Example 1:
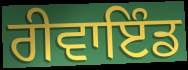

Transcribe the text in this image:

ਰੀਵਾਇੰਡ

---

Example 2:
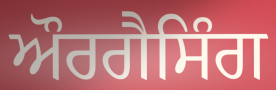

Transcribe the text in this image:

ਔਰਗੈਸਿੰਗ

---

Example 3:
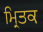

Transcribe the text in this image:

ਮ੍ਰਿਤਕ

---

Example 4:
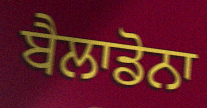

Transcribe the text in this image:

ਬੈਲਾਡੋਨਾ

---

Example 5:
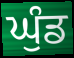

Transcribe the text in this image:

ਘੁੰਡ